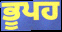
ਭੂਪਹ